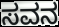
ಸವನ